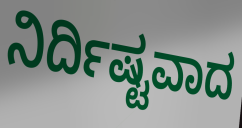
ನಿರ್ದಿಷ್ಟವಾದ